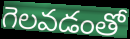
గెలవడంతో